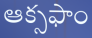
ఆక్సఫాం